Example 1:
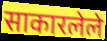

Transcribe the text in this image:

साकारलेले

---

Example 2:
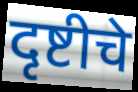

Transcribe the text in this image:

दृष्टीचे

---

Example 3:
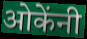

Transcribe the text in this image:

ओकेंनी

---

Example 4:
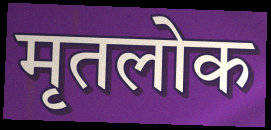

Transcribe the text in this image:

मृतलोक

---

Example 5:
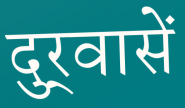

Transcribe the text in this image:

दुर्वासें